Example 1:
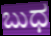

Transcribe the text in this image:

ಬುಧ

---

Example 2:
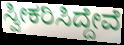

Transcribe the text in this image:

ಸ್ವೀಕರಿಸಿದ್ದೇವೆ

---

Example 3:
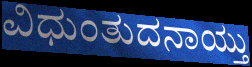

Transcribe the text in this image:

ವಿಧುಂತುದನಾಯ್ತು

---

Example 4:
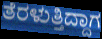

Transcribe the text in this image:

ತೆರಳುತ್ತಿದ್ದಾಗ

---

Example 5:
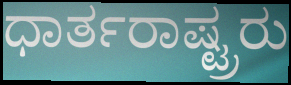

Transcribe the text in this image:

ಧಾರ್ತರಾಷ್ಟ್ರರು